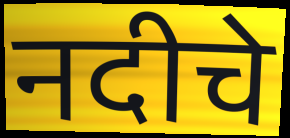
नदीचे